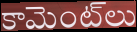
కామెంట్‌లు